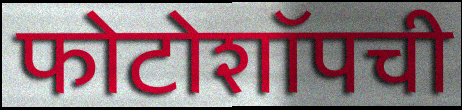
फोटोशॉपची